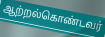
ஆற்றல்கொண்டவர்